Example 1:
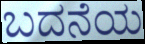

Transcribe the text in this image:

ಬದನೆಯ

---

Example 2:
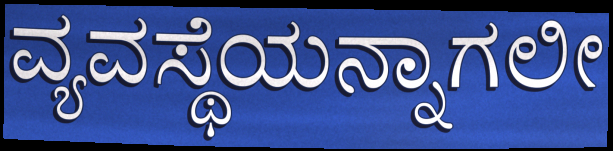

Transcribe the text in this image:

ವ್ಯವಸ್ಥೆಯನ್ನಾಗಲೀ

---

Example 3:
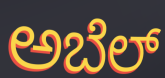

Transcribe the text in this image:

ಅಬೆಲ್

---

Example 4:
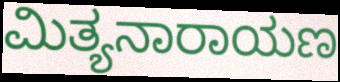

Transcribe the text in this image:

ಮಿತ್ಯನಾರಾಯಣ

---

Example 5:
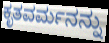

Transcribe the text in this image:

ಕೃತವರ್ಮನನ್ನು